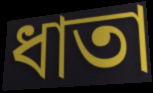
ধাতা